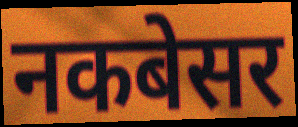
नकबेसर